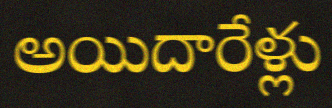
అయిదారేళ్లు